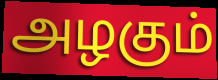
அழகும்